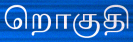
றொகுதி